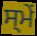
ਸ੍ਮੇਂ